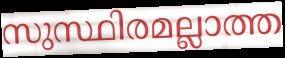
സുസ്ഥിരമല്ലാത്ത